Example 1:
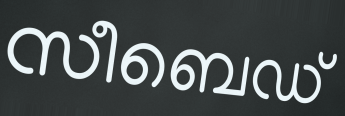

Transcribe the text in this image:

സീബെഡ്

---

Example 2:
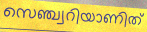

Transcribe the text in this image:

സെഞ്ച്വറിയാണിത്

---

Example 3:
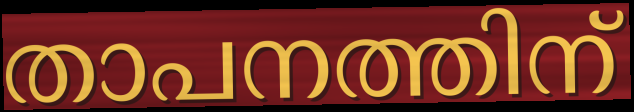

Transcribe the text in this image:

താപനത്തിന്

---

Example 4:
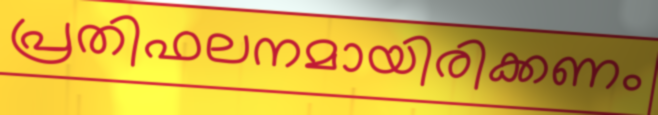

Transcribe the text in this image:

പ്രതിഫലനമായിരിക്കണം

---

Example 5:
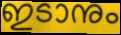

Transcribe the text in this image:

ഇടാനും